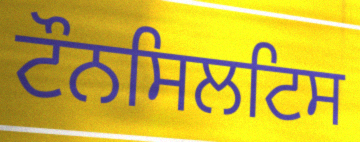
ਟੌਨਸਿਲਟਿਸ